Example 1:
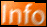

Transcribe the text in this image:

Info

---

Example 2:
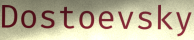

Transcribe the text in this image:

Dostoevsky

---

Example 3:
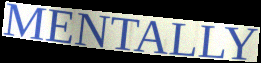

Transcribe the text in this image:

MENTALLY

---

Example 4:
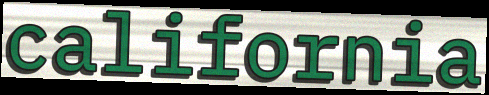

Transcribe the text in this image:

california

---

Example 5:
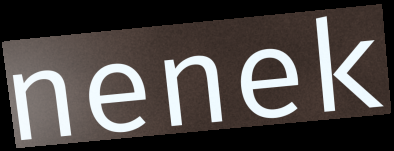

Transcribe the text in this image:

nenek